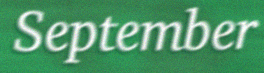
September